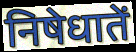
निषेधातें